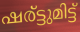
ഷര്ട്ടുമിട്ട്